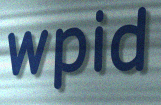
wpid